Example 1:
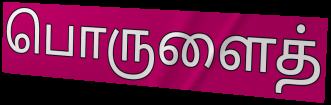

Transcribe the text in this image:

பொருளைத்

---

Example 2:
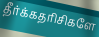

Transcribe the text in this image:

தீர்க்கதரிசிகளே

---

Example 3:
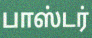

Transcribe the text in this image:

பாஸ்டர்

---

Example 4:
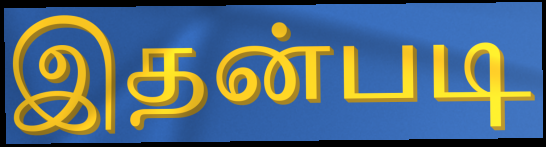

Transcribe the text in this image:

இதன்படி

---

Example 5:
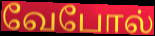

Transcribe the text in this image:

வேபோல்